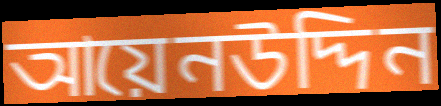
আয়েনউদ্দিন